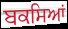
ਬਕਸਿਆਂ